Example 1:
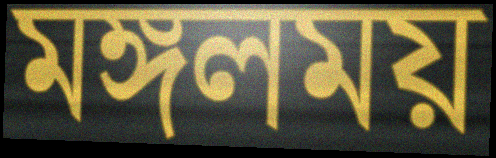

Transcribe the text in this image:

মঙ্গলময়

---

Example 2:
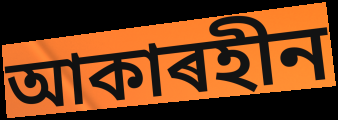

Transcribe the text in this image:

আকাৰহীন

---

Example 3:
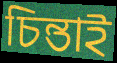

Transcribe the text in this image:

চিন্তাই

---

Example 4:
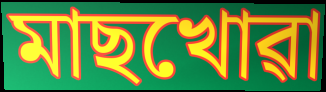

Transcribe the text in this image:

মাছখোৱা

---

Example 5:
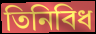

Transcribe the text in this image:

তিনিবিধ